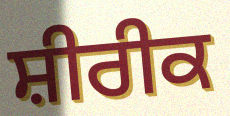
ਸ਼ੀਰੀਕ